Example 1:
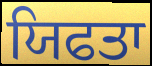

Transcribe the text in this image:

ਯਿਫਤਾ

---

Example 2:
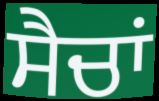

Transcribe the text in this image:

ਸੈਚਾਂ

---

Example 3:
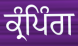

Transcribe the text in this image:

ਕ੍ਰੰਪਿੰਗ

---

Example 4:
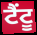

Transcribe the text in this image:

ਟੈਂਟੂ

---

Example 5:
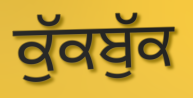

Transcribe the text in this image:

ਕੁੱਕਬੁੱਕ